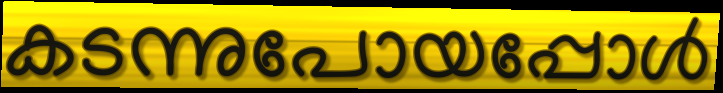
കടന്നുപോയപ്പോൾ